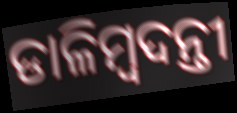
ଡାଳିମ୍ବଦନ୍ତୀ